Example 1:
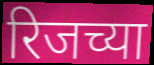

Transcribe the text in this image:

रिजच्या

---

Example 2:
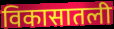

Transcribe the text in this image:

विकासातली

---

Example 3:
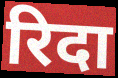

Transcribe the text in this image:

रिदा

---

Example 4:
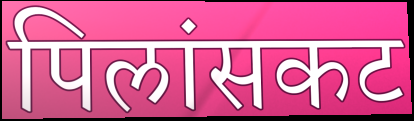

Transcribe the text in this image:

पिलांसकट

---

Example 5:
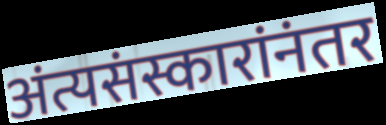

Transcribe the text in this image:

अंत्यसंस्कारांनंतर